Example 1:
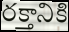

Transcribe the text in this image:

రక్తానికి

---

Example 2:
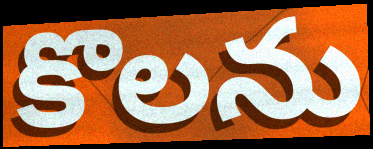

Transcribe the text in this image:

కొలను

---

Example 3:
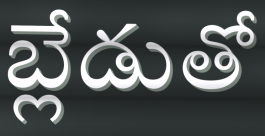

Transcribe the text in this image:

బ్లేడుతో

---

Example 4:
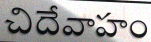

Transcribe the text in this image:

చిదేవాహం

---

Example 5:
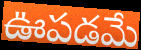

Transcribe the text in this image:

ఊపడమే